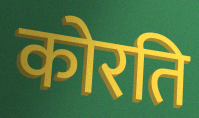
कोरति